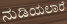
ನುಡಿಯಲಾರೆ